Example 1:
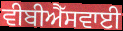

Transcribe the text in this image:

ਵੀਬੀਐੱਸਵਾਈ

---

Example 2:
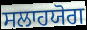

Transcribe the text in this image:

ਸਲਾਹਯੋਗ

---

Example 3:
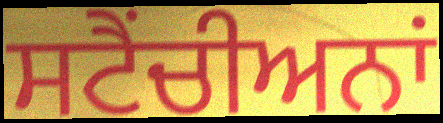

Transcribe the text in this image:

ਸਟੈਂਚੀਅਨਾਂ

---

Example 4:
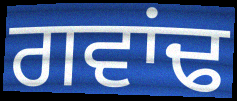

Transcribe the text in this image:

ਗਵਾਂਢ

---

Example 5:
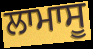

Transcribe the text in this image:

ਲਾਮਾਸੂ